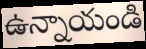
ఉన్నాయండి